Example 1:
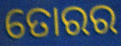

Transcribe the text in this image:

ତୋରର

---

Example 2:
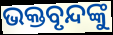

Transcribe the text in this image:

ଭକ୍ତବୃନ୍ଦଙ୍କୁ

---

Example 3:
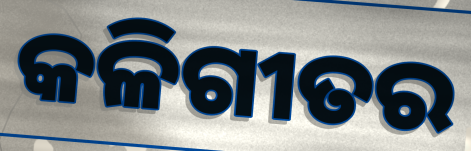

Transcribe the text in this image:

କଳିଗୀତର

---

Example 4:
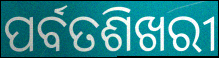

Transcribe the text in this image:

ପର୍ବତଶିଖରୀ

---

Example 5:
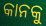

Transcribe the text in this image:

କାନକୁ